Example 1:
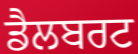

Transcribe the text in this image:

ਡੈਲਬਰਟ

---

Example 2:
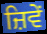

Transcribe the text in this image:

ਜ਼ਿਵੇਂ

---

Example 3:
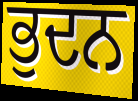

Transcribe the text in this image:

ਭੁਦਨ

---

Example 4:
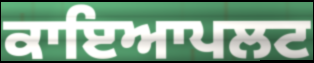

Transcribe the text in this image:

ਕਾਇਆਪਲਟ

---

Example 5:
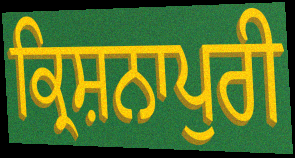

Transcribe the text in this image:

ਕ੍ਰਿਸ਼ਨਾਪੁਰੀ